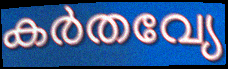
കർതവ്യേ